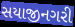
સયાજીનગરી